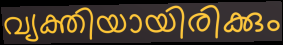
വ്യക്തിയായിരിക്കും